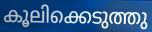
കൂലിക്കെടുത്തു